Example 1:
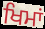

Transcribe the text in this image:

ਖਿਮਾਂ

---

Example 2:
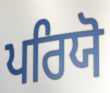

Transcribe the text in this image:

ਪਰਿਯੋ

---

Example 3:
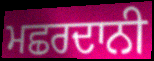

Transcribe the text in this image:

ਮਛਰਦਾਨੀ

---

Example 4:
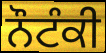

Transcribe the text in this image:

ਨੌਟੰਕੀ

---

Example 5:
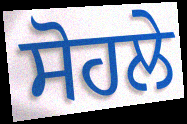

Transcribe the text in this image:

ਸੋਹਲੇ